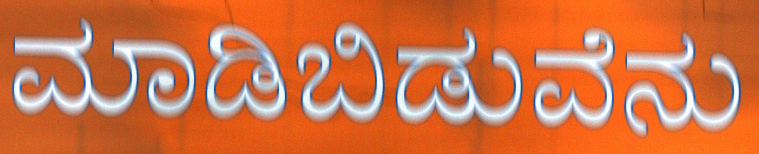
ಮಾಡಿಬಿಡುವೆನು